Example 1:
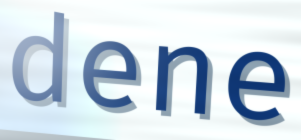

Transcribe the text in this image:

dene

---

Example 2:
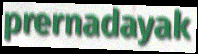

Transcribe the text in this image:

prernadayak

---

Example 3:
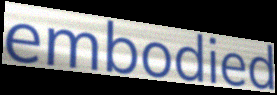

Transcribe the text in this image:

embodied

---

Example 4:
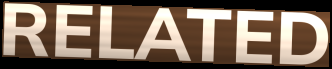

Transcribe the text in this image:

RELATED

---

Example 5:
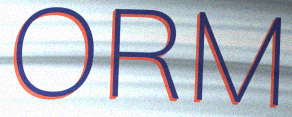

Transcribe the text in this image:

ORM